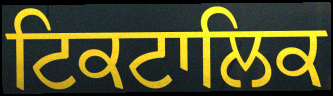
ਟਿਕਟਾਲਿਕ